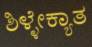
ಶಿಳ್ಳೇಕ್ಯಾತ